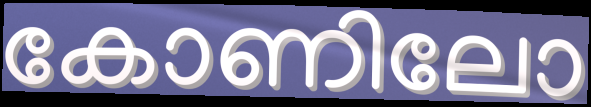
കോണിലോ